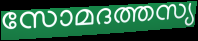
സോമദത്തസ്യ